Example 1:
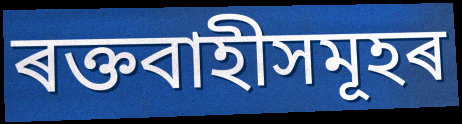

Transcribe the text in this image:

ৰক্তবাহীসমূহৰ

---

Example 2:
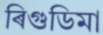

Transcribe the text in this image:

ৰিগুডিমা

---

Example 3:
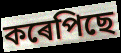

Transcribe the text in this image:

কৰেপিছে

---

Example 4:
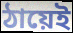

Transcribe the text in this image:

ঠায়েই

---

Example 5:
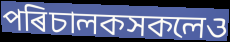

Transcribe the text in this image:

পৰিচালকসকলেও